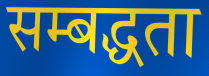
सम्‍बद्धता